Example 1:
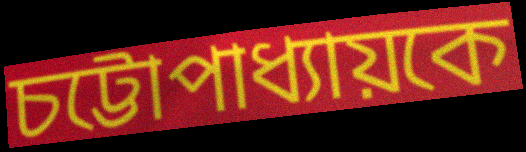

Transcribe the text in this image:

চট্টোপাধ্যায়কে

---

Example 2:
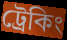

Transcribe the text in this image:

ট্রেকিং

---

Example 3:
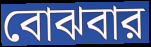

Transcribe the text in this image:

বোঝবার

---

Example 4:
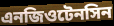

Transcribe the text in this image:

এনজিওটেনসিন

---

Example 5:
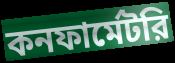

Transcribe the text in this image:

কনফার্মেটরি